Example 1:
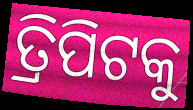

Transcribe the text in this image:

ତ୍ରିପିଟକୁ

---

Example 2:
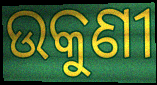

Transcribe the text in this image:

ଉକୁଣୀ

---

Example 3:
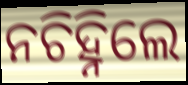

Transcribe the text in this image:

ନଚିହ୍ନିଲେ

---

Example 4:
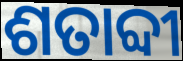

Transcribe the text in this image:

ଶତାବ୍ଦୀ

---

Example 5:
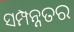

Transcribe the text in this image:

ସମ୍ପନ୍ନତର